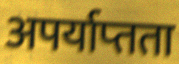
अपर्याप्‍तता